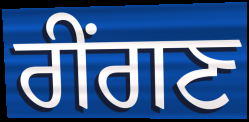
ਰੀਂਗਣ